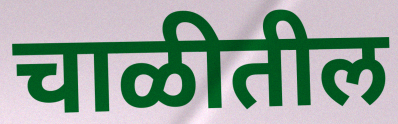
चाळीतील